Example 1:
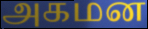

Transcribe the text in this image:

அகமன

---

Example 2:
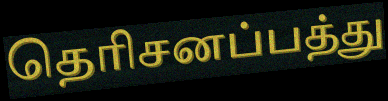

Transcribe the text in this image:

தெரிசனப்பத்து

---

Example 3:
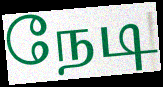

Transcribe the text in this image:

நேடி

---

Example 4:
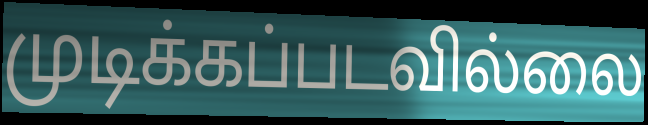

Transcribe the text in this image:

முடிக்கப்படவில்லை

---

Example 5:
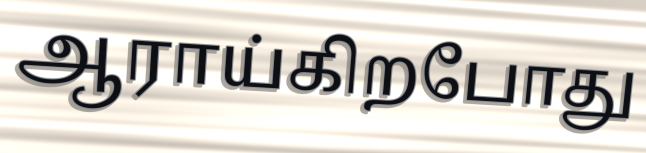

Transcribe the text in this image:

ஆராய்கிறபோது